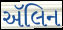
ઍલિન